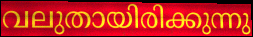
വലുതായിരിക്കുന്നു